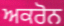
ਅਕਰੋਨ